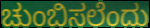
ಚುಂಬಿಸಲೆಂದು